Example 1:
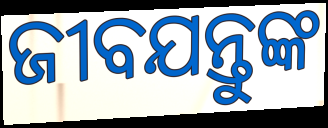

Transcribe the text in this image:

ଜୀବଯନ୍ତୁଙ୍କ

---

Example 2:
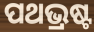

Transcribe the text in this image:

ପଥଭ୍ରଷ୍ଟ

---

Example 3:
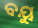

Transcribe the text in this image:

ବୟୁ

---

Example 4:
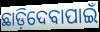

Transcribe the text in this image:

ଛାଡ଼ିଦେବାପାଇଁ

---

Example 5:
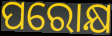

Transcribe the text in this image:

ପରୋକ୍ଷ